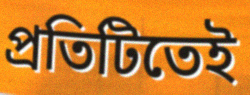
প্রতিটিতেই